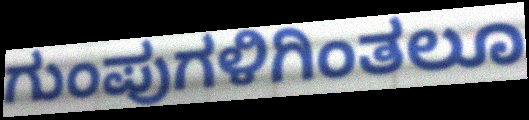
ಗುಂಪುಗಳಿಗಿಂತಲೂ